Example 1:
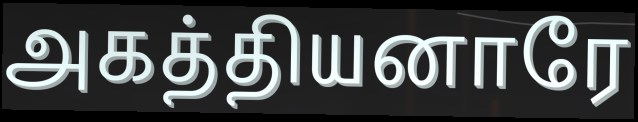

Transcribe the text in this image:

அகத்தியனாரே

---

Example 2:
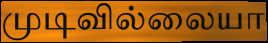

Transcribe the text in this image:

முடிவில்லையா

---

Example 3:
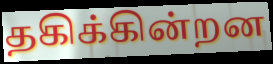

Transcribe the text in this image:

தகிக்கின்றன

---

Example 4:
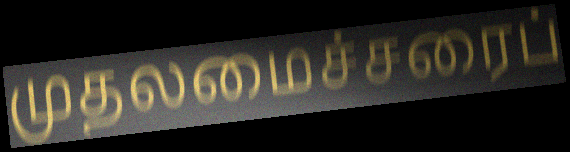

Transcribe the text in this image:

முதலமைச்சரைப்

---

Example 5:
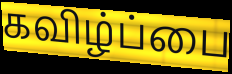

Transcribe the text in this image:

கவிழ்ப்பை